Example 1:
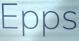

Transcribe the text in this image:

Epps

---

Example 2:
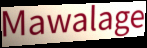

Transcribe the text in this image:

Mawalage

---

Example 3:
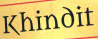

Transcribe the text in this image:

Khindit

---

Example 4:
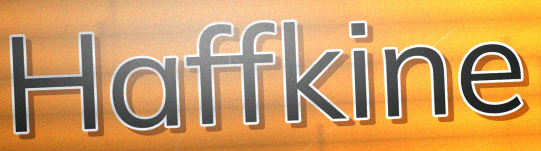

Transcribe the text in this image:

Haffkine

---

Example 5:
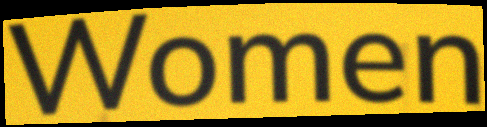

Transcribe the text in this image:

Women